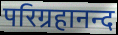
परिग्रहानन्द